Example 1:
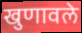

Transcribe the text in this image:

खुणावले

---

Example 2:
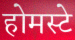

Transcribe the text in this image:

होमस्टे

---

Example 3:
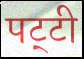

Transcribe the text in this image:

पट्‌टी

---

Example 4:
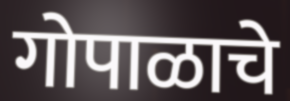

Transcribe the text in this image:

गोपाळाचे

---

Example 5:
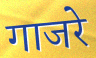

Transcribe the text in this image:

गाजरे